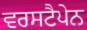
ਵਰਸਟੈਪੇਨ